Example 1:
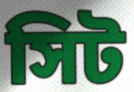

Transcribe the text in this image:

সিট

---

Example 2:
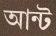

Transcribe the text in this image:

আন্ট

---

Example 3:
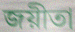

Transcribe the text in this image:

জয়ীতা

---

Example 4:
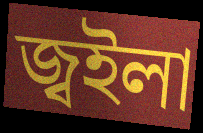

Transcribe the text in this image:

জ্বইলা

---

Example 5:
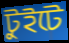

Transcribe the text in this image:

টুইটে